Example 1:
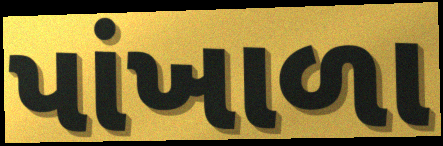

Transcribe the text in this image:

પાંખાળા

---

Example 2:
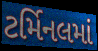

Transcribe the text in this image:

ટર્મિનલમાં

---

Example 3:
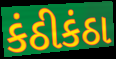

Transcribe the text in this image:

કંઠીકંઠા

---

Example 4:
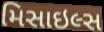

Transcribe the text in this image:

મિસાઇલ્સ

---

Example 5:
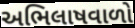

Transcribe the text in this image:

અભિલાષવાળો